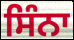
ਸਿੰਨਾ